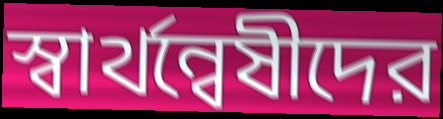
স্বার্থন্বেষীদের